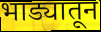
भाड्यातून